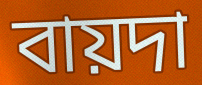
বায়দা